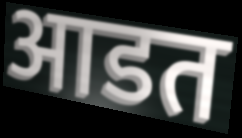
आडत